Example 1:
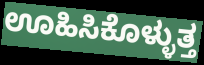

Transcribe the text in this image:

ಊಹಿಸಿಕೊಳ್ಳುತ್ತ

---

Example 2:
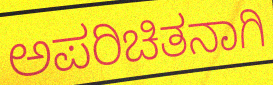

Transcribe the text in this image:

ಅಪರಿಚಿತನಾಗಿ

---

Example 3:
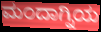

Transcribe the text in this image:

ಮಂದಾಗ್ನಿಯ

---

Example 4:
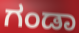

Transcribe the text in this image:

ಗಂಡಾ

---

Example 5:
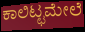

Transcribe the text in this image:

ಕಾಲಿಟ್ಟಮೇಲೆ